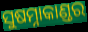
ସୁଷମ୍ନାକାଣ୍ଡର